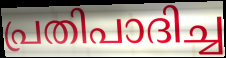
പ്രതിപാദിച്ച